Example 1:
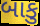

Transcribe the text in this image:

બાકુ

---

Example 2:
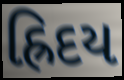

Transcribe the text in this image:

હ્રિદય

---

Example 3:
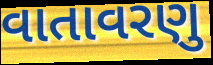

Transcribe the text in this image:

વાતાવરણુ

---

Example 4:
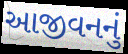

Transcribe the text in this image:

આજીવનનું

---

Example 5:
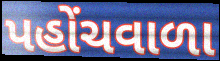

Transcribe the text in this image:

પહોંચવાળા